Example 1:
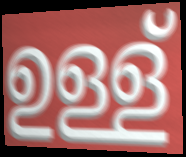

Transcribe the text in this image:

ഉള്ള്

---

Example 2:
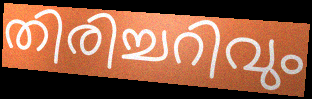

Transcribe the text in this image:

തിരിച്ചറിവും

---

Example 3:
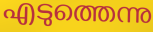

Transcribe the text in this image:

എടുത്തെന്നു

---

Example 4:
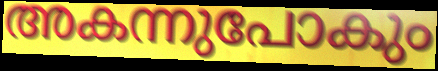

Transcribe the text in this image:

അകന്നുപോകും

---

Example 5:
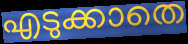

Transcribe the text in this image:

എടുക്കാതെ